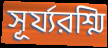
সূর্য্যরশ্মি